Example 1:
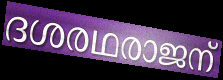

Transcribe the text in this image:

ദശരഥരാജന്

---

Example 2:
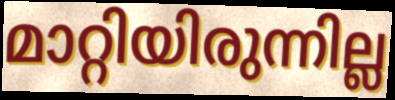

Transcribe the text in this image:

മാറ്റിയിരുന്നില്ല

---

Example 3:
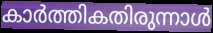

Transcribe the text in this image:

കാർത്തികതിരുന്നാൾ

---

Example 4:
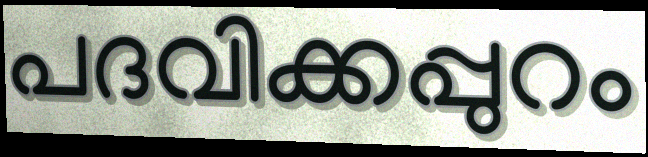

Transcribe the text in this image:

പദവിക്കപ്പുറം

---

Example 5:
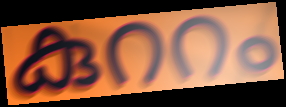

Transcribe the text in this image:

കുററം